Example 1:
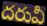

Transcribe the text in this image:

దరువీ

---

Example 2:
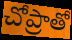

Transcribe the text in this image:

చోప్రాతో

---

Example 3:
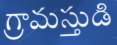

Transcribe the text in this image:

గ్రామస్తుడి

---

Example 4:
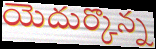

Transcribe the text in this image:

యెదుర్కొన్న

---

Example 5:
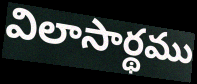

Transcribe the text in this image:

విలాసార్థము